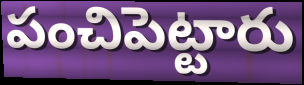
పంచిపెట్టారు